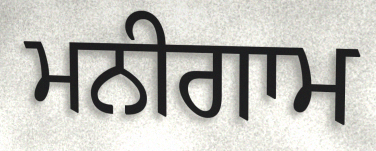
ਮਨੀਗਾਮ